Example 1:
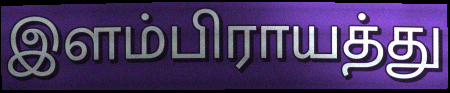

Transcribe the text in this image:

இளம்பிராயத்து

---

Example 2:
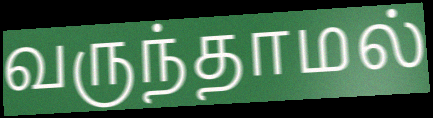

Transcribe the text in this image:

வருந்தாமல்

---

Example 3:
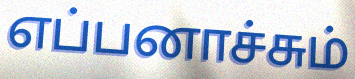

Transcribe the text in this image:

எப்பனாச்சும்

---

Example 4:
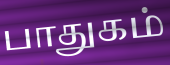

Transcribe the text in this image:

பாதுகம்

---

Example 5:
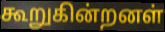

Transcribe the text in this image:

கூறுகின்றனள்